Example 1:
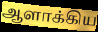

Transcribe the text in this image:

ஆளாக்கிய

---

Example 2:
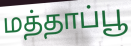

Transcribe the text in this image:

மத்தாப்பூ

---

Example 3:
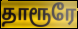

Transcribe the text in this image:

தாரூரே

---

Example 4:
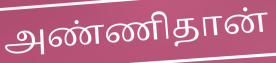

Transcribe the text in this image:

அண்ணிதான்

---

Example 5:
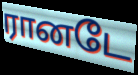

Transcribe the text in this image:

ரானடே